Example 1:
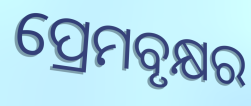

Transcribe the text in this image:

ପ୍ରେମବୃକ୍ଷର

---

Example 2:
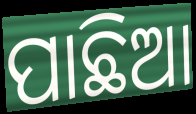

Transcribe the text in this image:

ପାଛିଆ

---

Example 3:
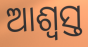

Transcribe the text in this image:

ଆଶ୍ଵସ୍ତ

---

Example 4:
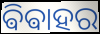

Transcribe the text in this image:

ଵିଵାହର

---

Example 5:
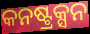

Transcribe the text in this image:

କନଷ୍ଟ୍ରକ୍ସନ